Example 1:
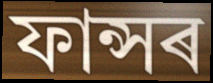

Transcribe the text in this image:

ফান্সৰ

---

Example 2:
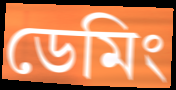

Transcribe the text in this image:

ডেমিং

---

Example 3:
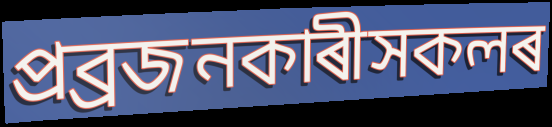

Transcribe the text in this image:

প্ৰব্ৰজনকাৰীসকলৰ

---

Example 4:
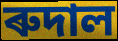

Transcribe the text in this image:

ৰুদাল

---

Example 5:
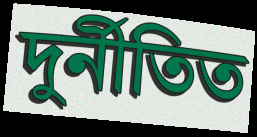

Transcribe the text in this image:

দুৰ্নীতিত